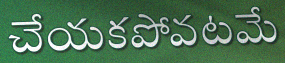
చేయకపోవటమే